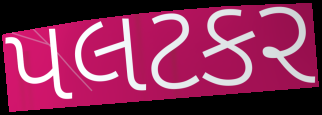
પલટકર